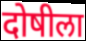
दोषीला